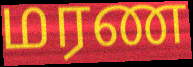
மரண